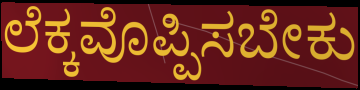
ಲೆಕ್ಕವೊಪ್ಪಿಸಬೇಕು